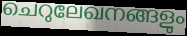
ചെറുലേഖനങ്ങളും